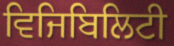
ਵਿਜਿਬਿਲਿਟੀ